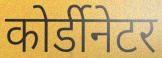
कोर्डीनेटर